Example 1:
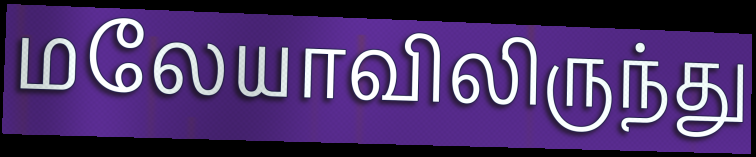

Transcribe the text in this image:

மலேயாவிலிருந்து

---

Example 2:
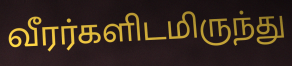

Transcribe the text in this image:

வீரர்களிடமிருந்து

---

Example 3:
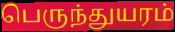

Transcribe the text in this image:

பெருந்துயரம்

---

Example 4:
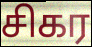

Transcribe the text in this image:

சிகர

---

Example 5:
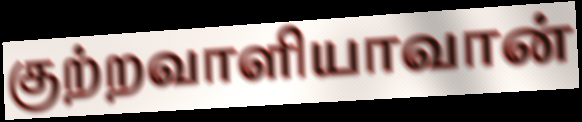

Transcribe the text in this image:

குற்றவாளியாவான்